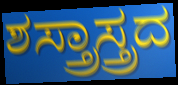
ಶಸ್ತ್ರಾಸ್ತ್ರದ